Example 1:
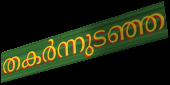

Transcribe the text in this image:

തകർന്നുടഞ്ഞ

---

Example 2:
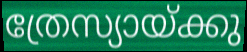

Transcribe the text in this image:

ത്രേസ്യായ്ക്കു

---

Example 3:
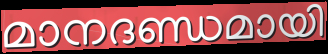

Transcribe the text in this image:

മാനദണ്ഡമായി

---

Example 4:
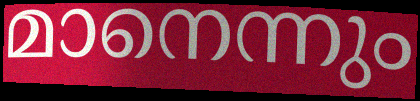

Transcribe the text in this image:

മാനെന്നും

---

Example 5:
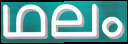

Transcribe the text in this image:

ഥലം